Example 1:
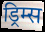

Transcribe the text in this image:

ड्रिम्स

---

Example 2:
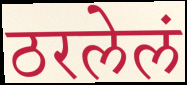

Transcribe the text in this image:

ठरलेलं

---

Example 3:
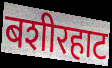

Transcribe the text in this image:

बशीरहाट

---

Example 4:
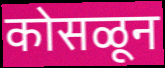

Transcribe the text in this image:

कोसळून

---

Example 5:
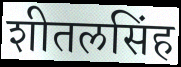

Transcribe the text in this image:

शीतलसिंह